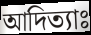
আদিত্যাঃ